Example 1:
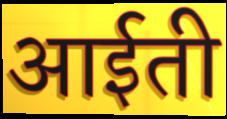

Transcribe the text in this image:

आईती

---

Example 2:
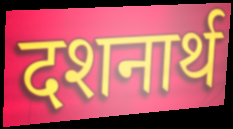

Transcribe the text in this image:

दशनार्थ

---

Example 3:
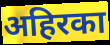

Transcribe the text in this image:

अहिरका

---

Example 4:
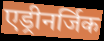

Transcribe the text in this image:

एड्रीनर्जिक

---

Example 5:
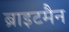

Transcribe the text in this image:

ब्राइटमैन